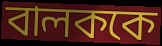
বালককে